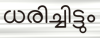
ധരിച്ചിട്ടും